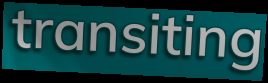
transiting